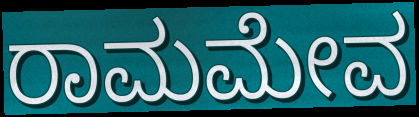
ರಾಮಮೇವ